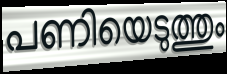
പണിയെടുത്തും